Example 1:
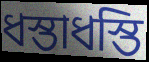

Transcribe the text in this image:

ধস্তাধস্তি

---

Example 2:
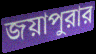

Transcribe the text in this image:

জয়াপুরার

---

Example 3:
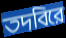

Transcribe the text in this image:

তদবিরে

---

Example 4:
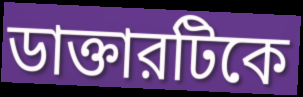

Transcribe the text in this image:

ডাক্তারটিকে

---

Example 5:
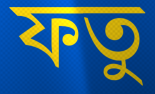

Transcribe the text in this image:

ফতু